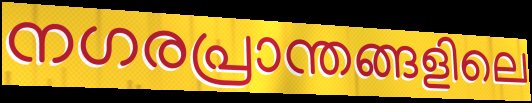
നഗരപ്രാന്തങ്ങളിലെ